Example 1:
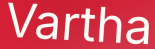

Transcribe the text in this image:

Vartha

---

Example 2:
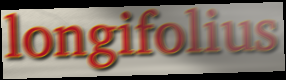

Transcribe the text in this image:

longifolius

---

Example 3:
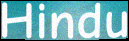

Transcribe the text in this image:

Hindu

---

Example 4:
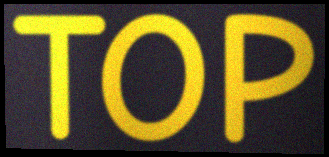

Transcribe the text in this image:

TOP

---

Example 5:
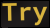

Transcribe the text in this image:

Try